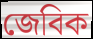
জেবিক